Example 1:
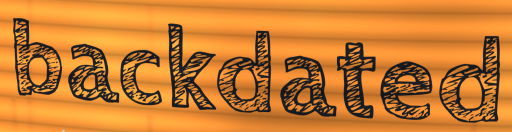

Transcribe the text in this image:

backdated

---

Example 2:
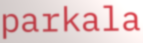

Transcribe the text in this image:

parkala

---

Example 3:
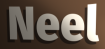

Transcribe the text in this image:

Neel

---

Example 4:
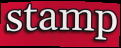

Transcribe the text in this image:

stamp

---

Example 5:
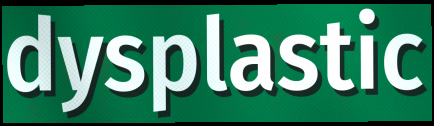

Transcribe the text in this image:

dysplastic